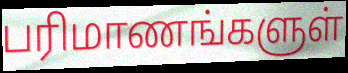
பரிமாணங்களுள்